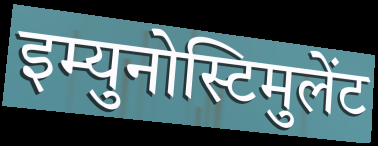
इम्युनोस्टिमुलेंट